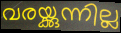
വരയ്ക്കുന്നില്ല